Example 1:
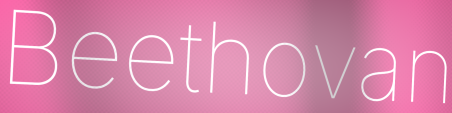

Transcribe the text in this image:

Beethovan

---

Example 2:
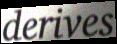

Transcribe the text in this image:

derives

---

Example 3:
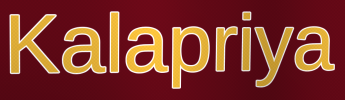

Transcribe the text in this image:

Kalapriya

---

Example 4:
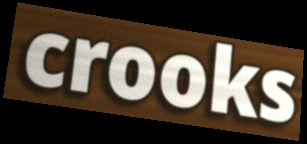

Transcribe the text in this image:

crooks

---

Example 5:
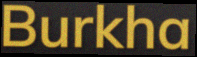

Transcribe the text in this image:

Burkha